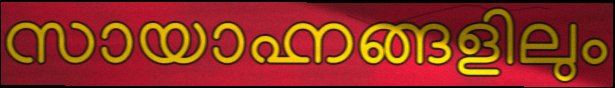
സായാഹ്നങ്ങളിലും